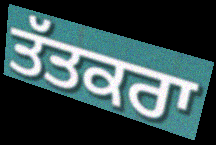
ਤੱਤਕਰਾ